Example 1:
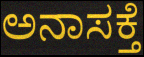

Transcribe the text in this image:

ಅನಾಸಕ್ತೆ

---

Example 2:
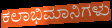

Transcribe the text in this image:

ಕಲಾಭಿಮಾನಿಗಳು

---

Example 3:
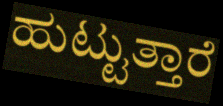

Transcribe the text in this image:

ಹುಟ್ಟುತ್ತಾರೆ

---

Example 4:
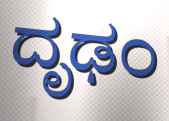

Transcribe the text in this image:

ದೃಢಂ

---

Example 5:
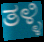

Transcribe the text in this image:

ತಳ್ಳಿ